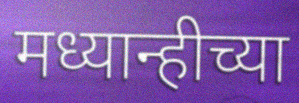
मध्यान्हीच्या